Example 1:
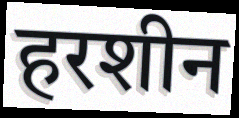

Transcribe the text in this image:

हरशीन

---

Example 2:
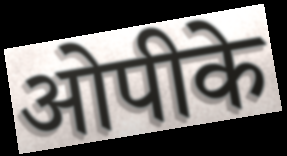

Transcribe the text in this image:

ओपीके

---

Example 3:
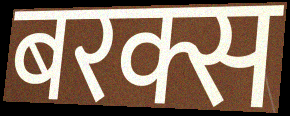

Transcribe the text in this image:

बरक्स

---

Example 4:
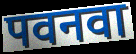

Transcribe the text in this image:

पवनवा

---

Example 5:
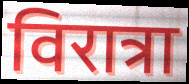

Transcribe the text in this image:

विरात्रा